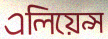
এলিয়েন্স